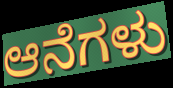
ಆನೆಗಳು